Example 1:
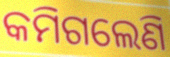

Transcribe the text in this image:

କମିଗଲେଣି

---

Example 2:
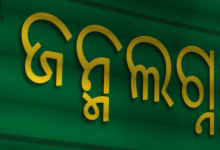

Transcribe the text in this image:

ଜନ୍ମଲଗ୍ନ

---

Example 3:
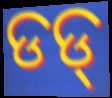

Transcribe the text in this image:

ଡଡ୍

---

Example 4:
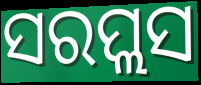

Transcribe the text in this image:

ସରପ୍ଲସ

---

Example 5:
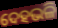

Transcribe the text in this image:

ଦେହଭଳି